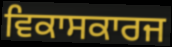
ਵਿਕਾਸਕਾਰਜ